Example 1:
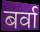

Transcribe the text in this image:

बर्वा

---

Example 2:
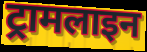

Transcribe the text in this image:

ट्रामलाइन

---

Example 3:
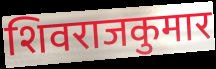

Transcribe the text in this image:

शिवराजकुमार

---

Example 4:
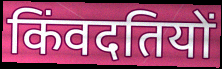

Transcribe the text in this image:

किंवदतियों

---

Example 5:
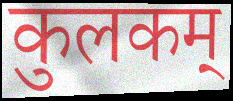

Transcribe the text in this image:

कुलकम्